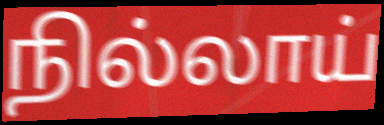
நில்லாய்